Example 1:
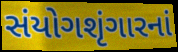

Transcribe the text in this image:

સંયોગશૃંગારનાં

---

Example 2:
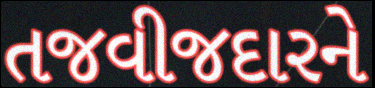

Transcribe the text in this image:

તજવીજદારને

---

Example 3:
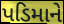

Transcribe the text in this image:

પડિમાને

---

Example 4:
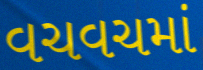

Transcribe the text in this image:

વચવચમાં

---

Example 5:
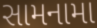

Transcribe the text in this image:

સામનામા